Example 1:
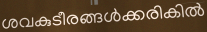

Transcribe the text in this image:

ശവകുടീരങ്ങൾക്കരികിൽ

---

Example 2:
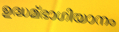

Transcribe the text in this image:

ഉദ്ധമ്ഭാഗിയാനം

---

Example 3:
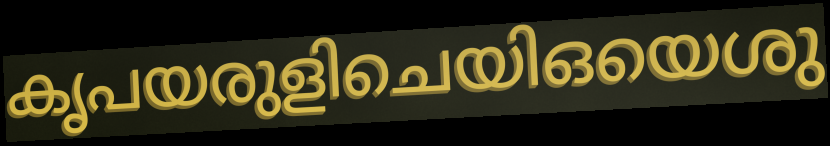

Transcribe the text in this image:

കൃപയരുളിചെയിഒയെശു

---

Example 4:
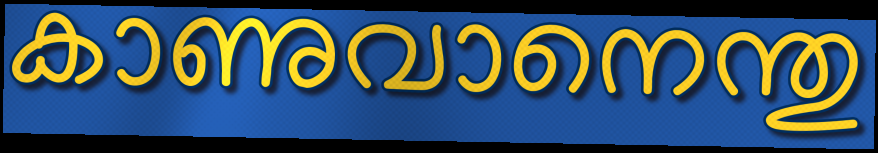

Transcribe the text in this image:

കാണുവാനെന്തു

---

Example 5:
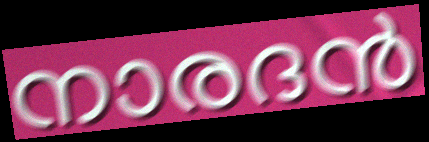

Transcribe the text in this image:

നാരദൻ